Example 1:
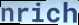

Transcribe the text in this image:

nrich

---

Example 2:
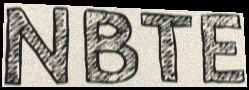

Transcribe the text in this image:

NBTE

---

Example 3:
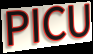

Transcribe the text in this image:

PICU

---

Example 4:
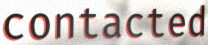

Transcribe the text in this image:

contacted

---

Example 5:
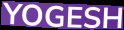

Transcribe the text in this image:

YOGESH